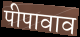
पीपावाव